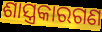
ଶାସ୍ତ୍ରକାରଗଣ